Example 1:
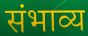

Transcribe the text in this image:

संभाव्य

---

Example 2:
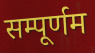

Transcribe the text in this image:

सम्पूर्णम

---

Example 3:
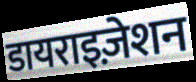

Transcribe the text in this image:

डायराइज़ेशन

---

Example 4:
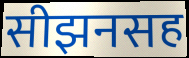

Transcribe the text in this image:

सीझनसह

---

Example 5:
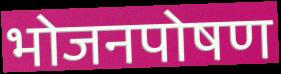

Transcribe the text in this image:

भोजनपोषण